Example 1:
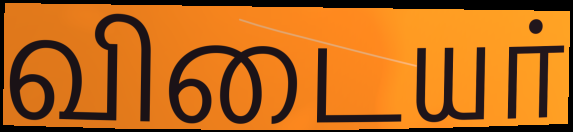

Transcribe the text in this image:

விடையர்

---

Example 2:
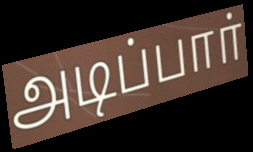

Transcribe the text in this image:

அடிப்பார்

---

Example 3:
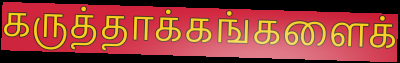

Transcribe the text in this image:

கருத்தாக்கங்களைக்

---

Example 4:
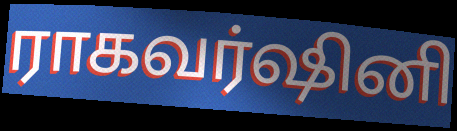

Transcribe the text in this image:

ராகவர்ஷினி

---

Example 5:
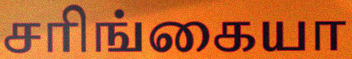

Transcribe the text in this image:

சரிங்கையா